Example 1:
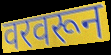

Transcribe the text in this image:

वरवरून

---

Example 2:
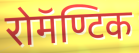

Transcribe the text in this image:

रोमॅण्टिक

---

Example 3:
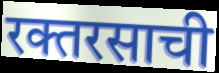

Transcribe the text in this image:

रक्तरसाची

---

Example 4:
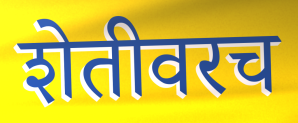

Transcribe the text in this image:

शेतीवरच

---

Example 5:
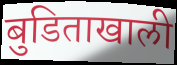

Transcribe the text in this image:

बुडिताखाली